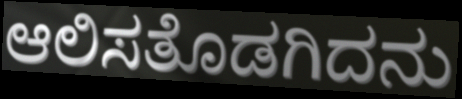
ಆಲಿಸತೊಡಗಿದನು